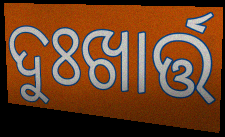
ଦୁଃଖାର୍ତ୍ତ